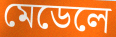
মেডেলে